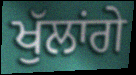
ਖੁੱਲਾਂਗੇ